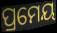
ପ୍ରମେୟ